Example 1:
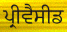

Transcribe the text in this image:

ਪ੍ਰੀਵੈਸੀਡ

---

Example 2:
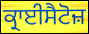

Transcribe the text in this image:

ਕ੍ਰਾਈਸੈਟੋਜ਼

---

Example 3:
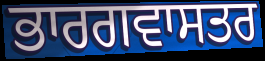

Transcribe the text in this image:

ਭਾਰਗਵਾਸਤਰ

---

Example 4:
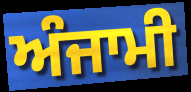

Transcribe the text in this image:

ਅੰਜਾਮੀ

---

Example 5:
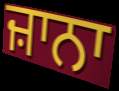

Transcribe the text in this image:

ਜ਼ਾਨਾ